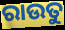
ରାଉତୁ